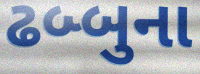
ઢબ્બુના